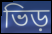
ভিড়